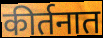
कीर्तनात